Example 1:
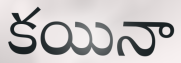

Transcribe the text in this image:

కయినా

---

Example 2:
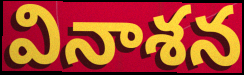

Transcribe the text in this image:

వినాశన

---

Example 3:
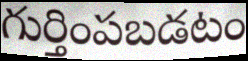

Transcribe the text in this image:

గుర్తింపబడటం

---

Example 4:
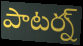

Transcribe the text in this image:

పాటర్న్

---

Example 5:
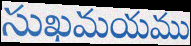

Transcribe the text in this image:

సుఖమయము